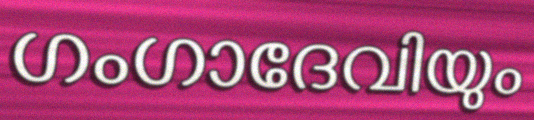
ഗംഗാദേവിയും